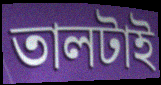
তালটাই